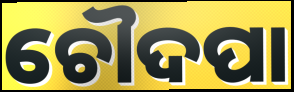
ଚୌଦପା